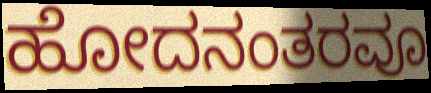
ಹೋದನಂತರವೂ